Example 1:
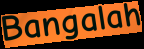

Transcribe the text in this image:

Bangalah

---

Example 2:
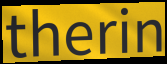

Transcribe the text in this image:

therin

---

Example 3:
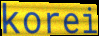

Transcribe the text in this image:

korei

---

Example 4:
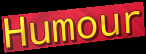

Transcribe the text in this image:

Humour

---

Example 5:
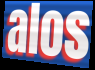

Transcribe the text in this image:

alos